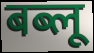
बब्लू